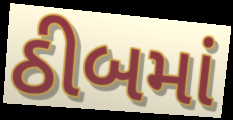
ઠીબમાં